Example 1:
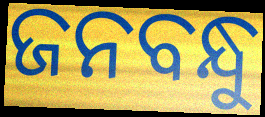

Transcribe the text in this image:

ଜନବନ୍ଧୁ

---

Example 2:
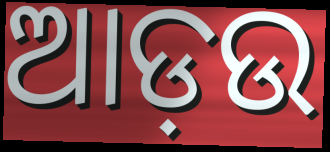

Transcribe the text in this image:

ଆଡ଼ଉ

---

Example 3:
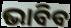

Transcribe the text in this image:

ଭାବିବ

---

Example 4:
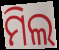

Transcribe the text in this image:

ମିଲ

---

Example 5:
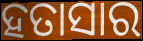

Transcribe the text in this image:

ହତାସାର